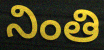
నింతి